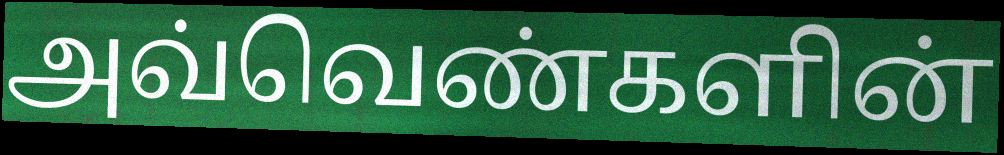
அவ்வெண்களின்